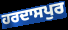
ਹਰਦਾਸਪੁਰ